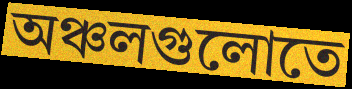
অঞ্চলগুলোতে